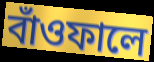
বাঁওফালে